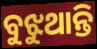
ବୁଝୁଥାନ୍ତି